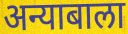
अन्याबाला